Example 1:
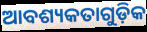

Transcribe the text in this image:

ଆବଶ୍ୟକତାଗୁଡ଼ିକ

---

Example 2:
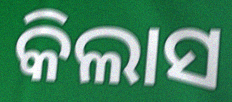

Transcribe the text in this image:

କିଲାସ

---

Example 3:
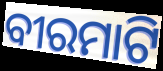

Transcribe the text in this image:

ବୀରମାଟି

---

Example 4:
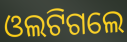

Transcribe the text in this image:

ଓଲଟିଗଲେ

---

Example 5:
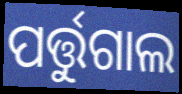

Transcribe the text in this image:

ପର୍ତ୍ତୁଗାଲ